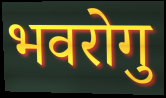
भवरोगु